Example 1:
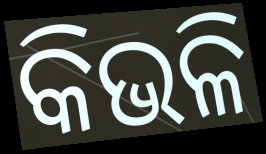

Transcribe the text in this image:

କିଭଳି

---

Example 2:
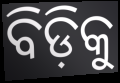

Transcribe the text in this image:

ବିଡ଼ିକୁ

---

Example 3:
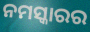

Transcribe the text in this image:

ନମସ୍କାରର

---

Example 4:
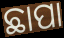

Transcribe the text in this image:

ଛାପା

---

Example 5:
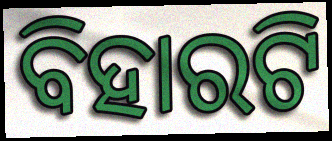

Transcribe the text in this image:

ବିହାରଟି